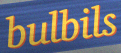
bulbils